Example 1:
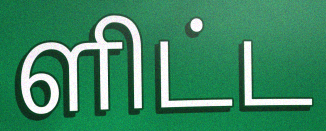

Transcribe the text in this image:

ளிட்ட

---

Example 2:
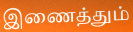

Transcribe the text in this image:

இணைத்தும்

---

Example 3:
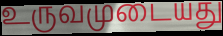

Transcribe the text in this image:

உருவமுடையது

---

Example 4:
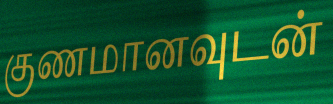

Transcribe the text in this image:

குணமானவுடன்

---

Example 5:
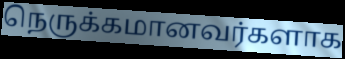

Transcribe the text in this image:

நெருக்கமானவர்களாக